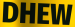
DHEW